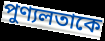
পুণ্যলতাকে